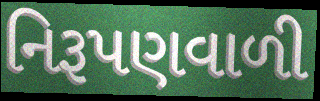
નિરૂપણવાળી